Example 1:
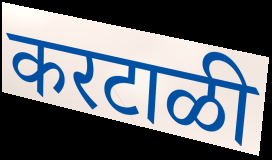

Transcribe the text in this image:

करटाळी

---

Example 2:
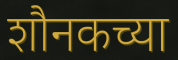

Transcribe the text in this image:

शौनकच्या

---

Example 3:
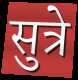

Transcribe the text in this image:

सुत्रे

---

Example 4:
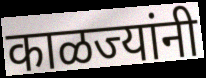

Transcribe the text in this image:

काळज्यांनी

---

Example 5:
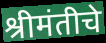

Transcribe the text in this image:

श्रीमंतीचे